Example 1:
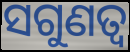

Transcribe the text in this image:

ସଗୁଣତ୍ଵ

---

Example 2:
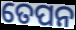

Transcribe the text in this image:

ତେପନ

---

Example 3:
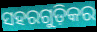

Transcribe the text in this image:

ସହରଗୁଡ଼ିକର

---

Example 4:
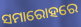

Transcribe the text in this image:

ସମାରୋହରେ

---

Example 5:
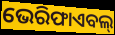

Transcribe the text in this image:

ଭେରିଫାଏବଲ୍